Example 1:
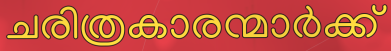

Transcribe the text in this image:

ചരിത്രകാരന്മാർക്ക്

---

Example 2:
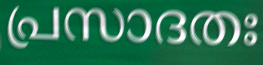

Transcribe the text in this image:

പ്രസാദതഃ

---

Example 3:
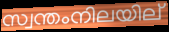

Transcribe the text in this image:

സ്വന്തംനിലയില്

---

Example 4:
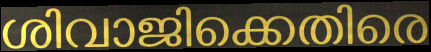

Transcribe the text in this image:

ശിവാജിക്കെതിരെ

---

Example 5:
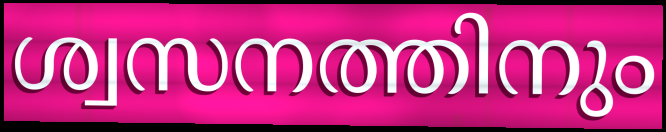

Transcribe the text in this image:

ശ്വസനത്തിനും